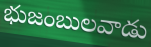
భుజంబులవాడు